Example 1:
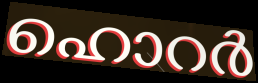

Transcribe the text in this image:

ഹൊറർ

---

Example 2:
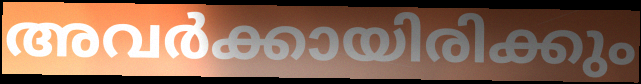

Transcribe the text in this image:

അവർക്കായിരിക്കും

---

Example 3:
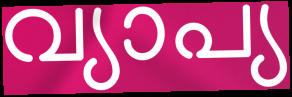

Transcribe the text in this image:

വ്യാപ്യ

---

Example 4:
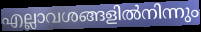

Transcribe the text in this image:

എല്ലാവശങ്ങളിൽനിന്നും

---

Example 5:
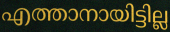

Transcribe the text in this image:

എത്താനായിട്ടില്ല